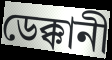
ডেক্কানী